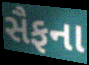
સૈફના